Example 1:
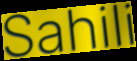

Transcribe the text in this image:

Sahili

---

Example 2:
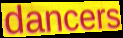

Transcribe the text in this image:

dancers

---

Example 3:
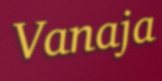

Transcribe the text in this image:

Vanaja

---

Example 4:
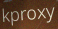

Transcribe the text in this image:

kproxy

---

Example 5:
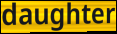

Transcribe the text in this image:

daughter